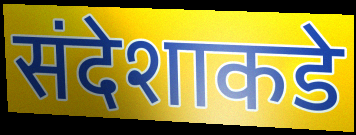
संदेशाकडे